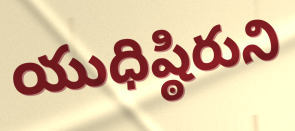
యుధిష్ఠిరుని